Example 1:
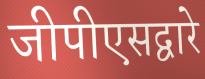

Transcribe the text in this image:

जीपीएसद्वारे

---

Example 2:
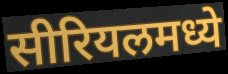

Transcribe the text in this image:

सीरियलमध्ये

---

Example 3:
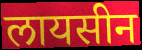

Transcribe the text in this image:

लायसीन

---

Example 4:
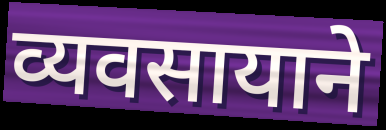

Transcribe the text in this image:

व्यवसायाने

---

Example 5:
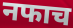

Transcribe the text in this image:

नफाच